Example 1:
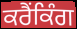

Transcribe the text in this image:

ਕਰੈਂਕਿੰਗ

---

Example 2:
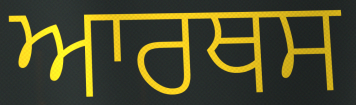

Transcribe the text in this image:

ਆਰਥਸ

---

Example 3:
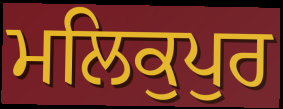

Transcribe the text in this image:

ਮਲਿਕੁਪੁਰ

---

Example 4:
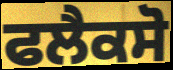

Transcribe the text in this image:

ਫਲੈਕਸੋ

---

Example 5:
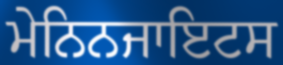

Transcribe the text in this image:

ਮੇਨਿਨਜਾਇਟਸ